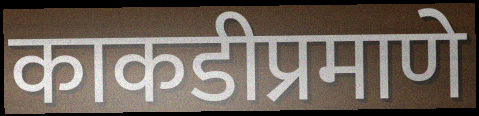
काकडीप्रमाणे